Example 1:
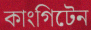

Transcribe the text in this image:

কাংগিটেন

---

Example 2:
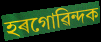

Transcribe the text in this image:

হৰগোৱিন্দক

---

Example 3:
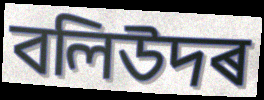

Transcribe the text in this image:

বলিউদৰ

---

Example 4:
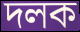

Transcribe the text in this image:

দলক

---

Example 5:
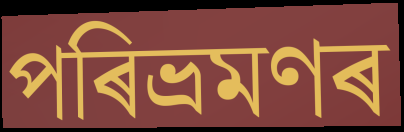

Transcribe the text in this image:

পৰিভ্ৰমণৰ